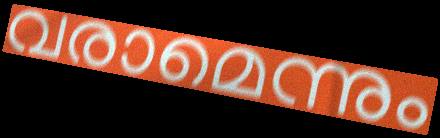
വരാമെന്നും